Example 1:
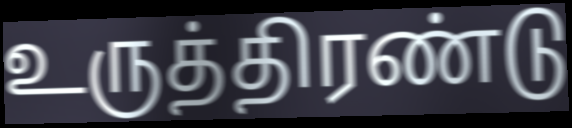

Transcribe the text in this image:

உருத்திரண்டு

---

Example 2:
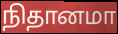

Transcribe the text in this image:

நிதானமா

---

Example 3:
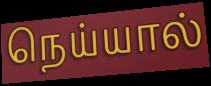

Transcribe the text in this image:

நெய்யால்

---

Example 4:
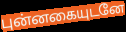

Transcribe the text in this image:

புன்னகையுடனே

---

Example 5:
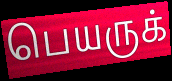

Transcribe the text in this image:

பெயருக்